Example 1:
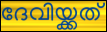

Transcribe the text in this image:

ദേവിയ്ക്കത്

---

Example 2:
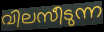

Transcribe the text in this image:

വിലസീടുന്ന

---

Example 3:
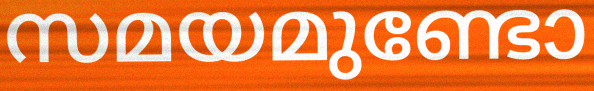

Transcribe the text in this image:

സമയമുണ്ടോ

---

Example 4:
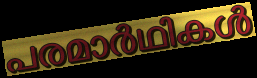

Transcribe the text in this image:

പരമാർഥികൾ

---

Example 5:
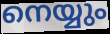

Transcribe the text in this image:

നെയ്യും